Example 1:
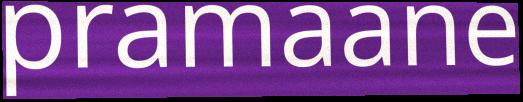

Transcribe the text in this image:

pramaane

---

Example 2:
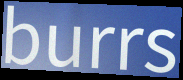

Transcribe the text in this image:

burrs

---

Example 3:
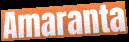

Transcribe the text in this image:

Amaranta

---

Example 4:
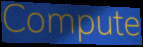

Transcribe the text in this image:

Compute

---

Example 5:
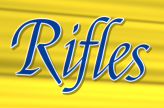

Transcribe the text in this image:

Rifles